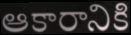
ఆకారానికి